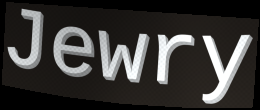
Jewry